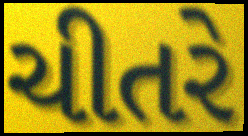
ચીતરે